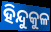
ହିନ୍ଦୁକୁଳ